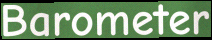
Barometer